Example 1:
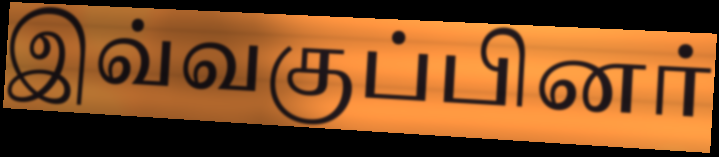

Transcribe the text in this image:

இவ்வகுப்பினர்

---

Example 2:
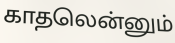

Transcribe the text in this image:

காதலென்னும்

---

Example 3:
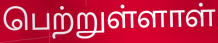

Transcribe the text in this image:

பெற்றுள்ளாள்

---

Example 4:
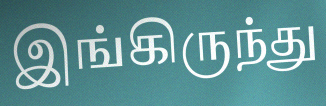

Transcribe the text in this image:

இங்கிருந்து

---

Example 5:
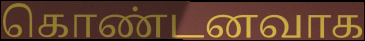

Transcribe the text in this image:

கொண்டனவாக